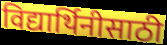
विद्यार्थिनीसाठी